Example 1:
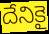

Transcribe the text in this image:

దేనికై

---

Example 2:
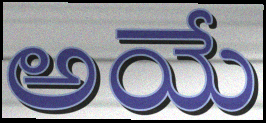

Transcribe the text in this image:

అయే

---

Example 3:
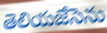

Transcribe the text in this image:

తెలియజేసెను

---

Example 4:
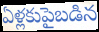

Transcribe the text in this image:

ఏళ్లకుపైబడిన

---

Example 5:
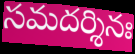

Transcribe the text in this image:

సమదర్శినః